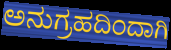
ಅನುಗ್ರಹದಿಂದಾಗಿ